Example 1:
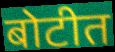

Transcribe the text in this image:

बोटीत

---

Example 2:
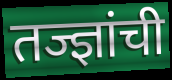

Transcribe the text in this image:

तज्ज्ञांची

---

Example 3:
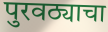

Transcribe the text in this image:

पुरवठ्याचा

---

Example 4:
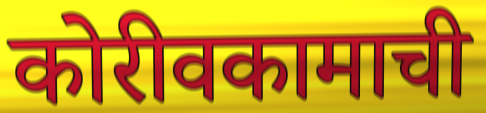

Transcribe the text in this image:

कोरीवकामाची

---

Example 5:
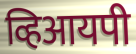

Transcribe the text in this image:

व्हिआयपी